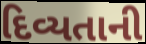
દિવ્યતાની